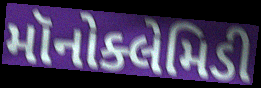
મૉનોક્લેમિડી